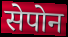
सेपोन